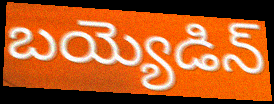
బయ్యెడిన్